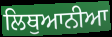
ਲਿਥੁਆਨੀਆ